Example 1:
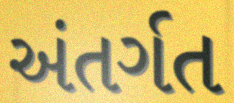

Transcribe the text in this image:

અંતર્ગત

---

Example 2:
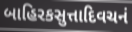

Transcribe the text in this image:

બાહિરકસુત્તાદિવચનં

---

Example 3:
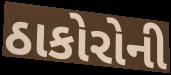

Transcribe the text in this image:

ઠાકોરોની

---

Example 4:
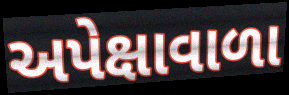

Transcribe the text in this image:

અપેક્ષાવાળા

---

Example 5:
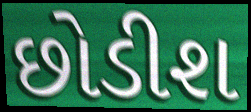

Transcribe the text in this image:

છોડીશ